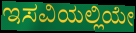
ಇಸವಿಯಲ್ಲಿಯೇ